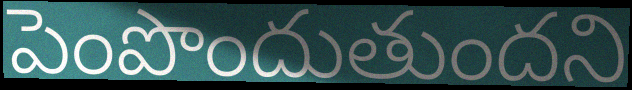
పెంపొందుతుందని